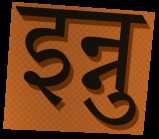
इन्नु